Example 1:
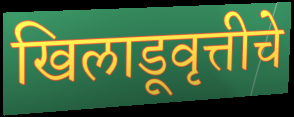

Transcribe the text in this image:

खिलाडूवृत्तीचे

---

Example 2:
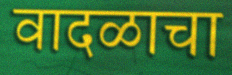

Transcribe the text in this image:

वादळाचा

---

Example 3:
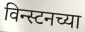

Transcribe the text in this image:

विन्स्टनच्या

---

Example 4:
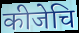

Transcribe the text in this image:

कीजेचि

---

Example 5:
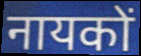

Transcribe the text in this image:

नायकों